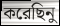
করেছিনু